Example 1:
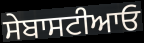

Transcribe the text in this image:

ਸੇਬਾਸਟੀਆਓ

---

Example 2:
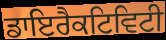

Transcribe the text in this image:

ਡਾਇਰੈਕਟਿਵਿਟੀ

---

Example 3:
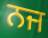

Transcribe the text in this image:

ਨਜ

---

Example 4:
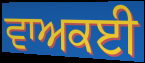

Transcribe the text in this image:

ਵਾਅਕਈ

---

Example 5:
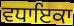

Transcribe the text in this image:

ਵਧਾਇਕਾ